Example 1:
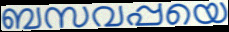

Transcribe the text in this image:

ബസവപ്പയെ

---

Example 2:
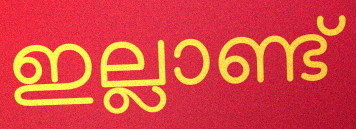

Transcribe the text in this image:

ഇല്ലാണ്ട്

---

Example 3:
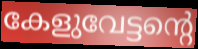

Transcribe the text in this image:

കേളുവേട്ടന്റെ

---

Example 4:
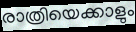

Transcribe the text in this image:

രാത്രിയെക്കാളും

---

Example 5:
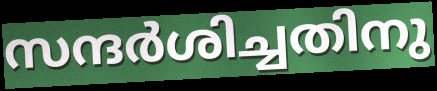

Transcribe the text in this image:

സന്ദർശിച്ചതിനു